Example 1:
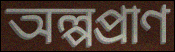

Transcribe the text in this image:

অল্পপ্ৰাণ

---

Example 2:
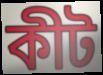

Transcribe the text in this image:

কীট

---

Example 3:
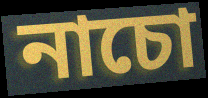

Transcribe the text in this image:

নাচো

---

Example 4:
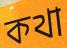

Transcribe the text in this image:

কথা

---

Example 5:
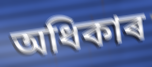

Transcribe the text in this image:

অধিকাৰ